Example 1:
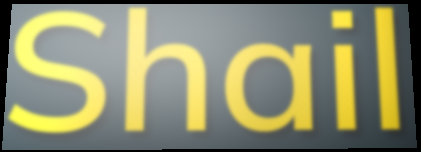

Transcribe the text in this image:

Shail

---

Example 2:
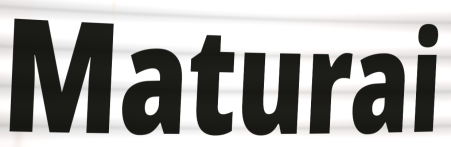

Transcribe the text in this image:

Maturai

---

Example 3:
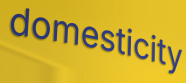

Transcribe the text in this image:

domesticity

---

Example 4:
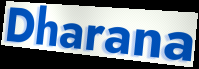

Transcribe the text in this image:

Dharana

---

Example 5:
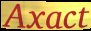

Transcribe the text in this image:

Axact